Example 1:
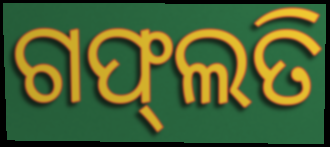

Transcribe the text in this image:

ଗଫ୍‌ଲତି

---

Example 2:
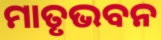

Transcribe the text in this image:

ମାତୃଭବନ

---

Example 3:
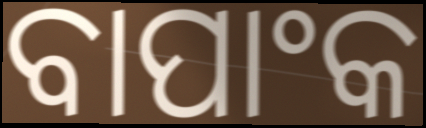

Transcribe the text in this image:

ବାପାଂକ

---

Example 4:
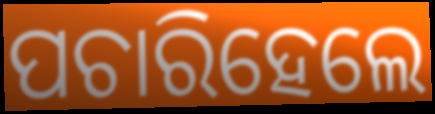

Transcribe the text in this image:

ପଚାରିହେଲେ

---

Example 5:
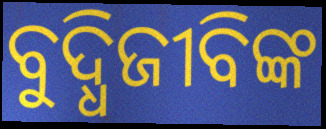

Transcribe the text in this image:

ବୁଦ୍ଧିଜୀବିଙ୍କ